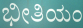
ಭೀತಿಯಂ